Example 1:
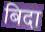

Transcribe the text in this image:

बिदा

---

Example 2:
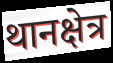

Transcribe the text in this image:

थानक्षेत्र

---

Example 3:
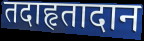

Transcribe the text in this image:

तदाहृतादान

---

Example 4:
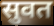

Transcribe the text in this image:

सुवत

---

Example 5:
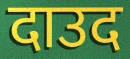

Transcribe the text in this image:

दाउद